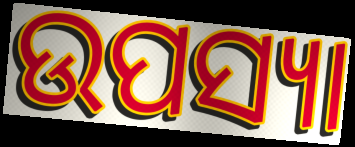
ଉପସ୍ୟା